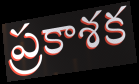
ప్రకాశక